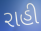
રાહી